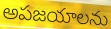
అపజయాలను